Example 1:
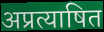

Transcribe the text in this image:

अप्रत्याषित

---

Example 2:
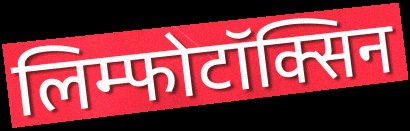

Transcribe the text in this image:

लिम्फोटॉक्सिन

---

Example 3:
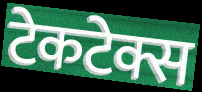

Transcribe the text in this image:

टेकटेक्स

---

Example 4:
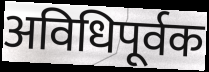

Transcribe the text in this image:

अविधिपूर्वक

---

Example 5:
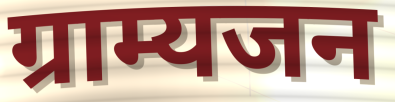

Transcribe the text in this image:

ग्राम्यजन